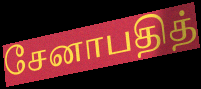
சேனாபதித்